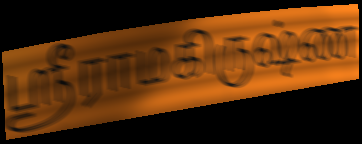
ஸ்ரீராமகிருஷ்ண